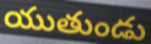
యుతుండు